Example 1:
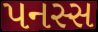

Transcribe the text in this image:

પનસ્સ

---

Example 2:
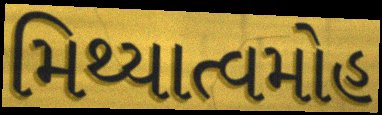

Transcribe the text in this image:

મિથ્યાત્વમોહ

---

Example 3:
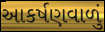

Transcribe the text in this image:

આકર્ષણવાળું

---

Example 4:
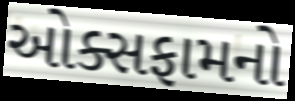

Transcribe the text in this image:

ઓક્સફામનો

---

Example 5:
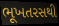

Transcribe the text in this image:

ભૂખતરસથી